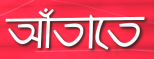
আঁতাতে